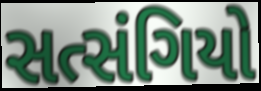
સત્સંગિયો